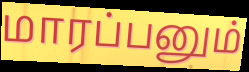
மாரப்பனும்